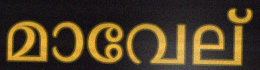
മാവേല്